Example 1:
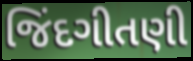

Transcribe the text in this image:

જિંદગીતણી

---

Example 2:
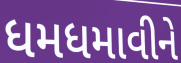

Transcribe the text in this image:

ધમધમાવીને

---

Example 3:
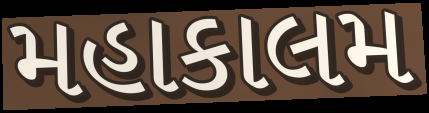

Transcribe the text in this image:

મહાકાલમ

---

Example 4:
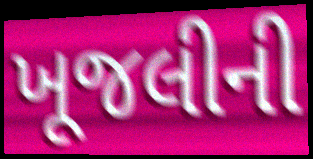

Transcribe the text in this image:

ખૂજલીની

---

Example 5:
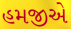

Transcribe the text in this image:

હમજીએ